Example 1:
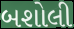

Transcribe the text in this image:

બશોલી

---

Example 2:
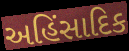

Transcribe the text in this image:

અહિંસાદિક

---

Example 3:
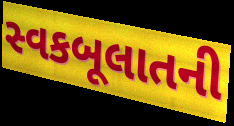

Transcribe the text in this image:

સ્વકબૂલાતની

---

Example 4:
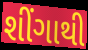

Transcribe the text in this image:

શીંગાથી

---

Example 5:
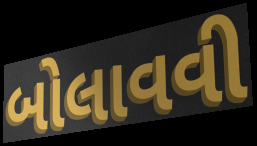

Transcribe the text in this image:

બોલાવવી